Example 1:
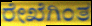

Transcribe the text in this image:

ರೇಖೆಗಿಂತ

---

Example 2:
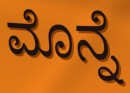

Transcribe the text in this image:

ಮೊನ್ನೆ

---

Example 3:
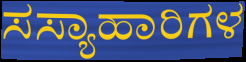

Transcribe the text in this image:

ಸಸ್ಯಾಹಾರಿಗಳ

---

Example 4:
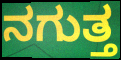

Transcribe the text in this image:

ನಗುತ್ತ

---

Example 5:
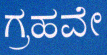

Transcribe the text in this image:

ಗ್ರಹವೇ